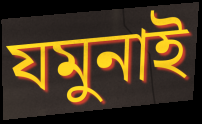
যমুনাই